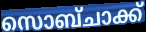
സൊബ്ചാക്ക്